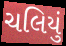
ચલિયું